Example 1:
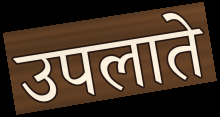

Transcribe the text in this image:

उपलाते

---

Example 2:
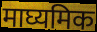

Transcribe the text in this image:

माघ्यमिक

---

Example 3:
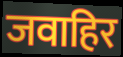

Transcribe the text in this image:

जवाहिर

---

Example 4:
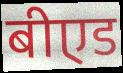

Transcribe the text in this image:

बीएड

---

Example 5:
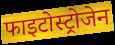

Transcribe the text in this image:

फाइटोस्ट्रोजेन